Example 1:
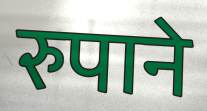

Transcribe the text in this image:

रुपाने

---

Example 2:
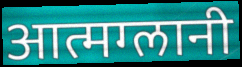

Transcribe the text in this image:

आत्मग्लानी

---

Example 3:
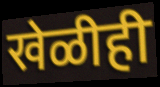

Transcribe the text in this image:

खेळीही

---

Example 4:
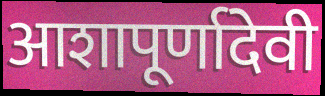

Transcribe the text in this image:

आशापूर्णादेवी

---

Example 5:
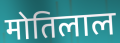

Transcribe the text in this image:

मोतिलाल